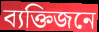
ব্যক্তিজনে